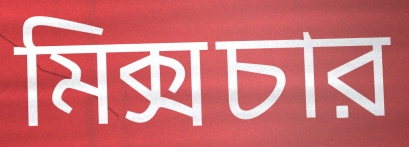
মিক্সচার